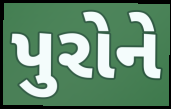
પુરોને